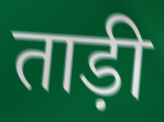
ताड़ी